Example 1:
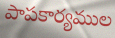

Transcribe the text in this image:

పాపకార్యముల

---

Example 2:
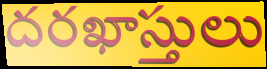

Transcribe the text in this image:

దరఖాస్తులు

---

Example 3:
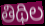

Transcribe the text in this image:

తిథిల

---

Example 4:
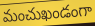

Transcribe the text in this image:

మంచుఖండంగా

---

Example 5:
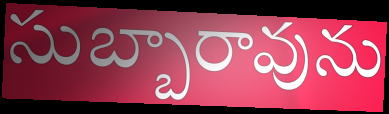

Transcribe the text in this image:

సుబ్బారావును